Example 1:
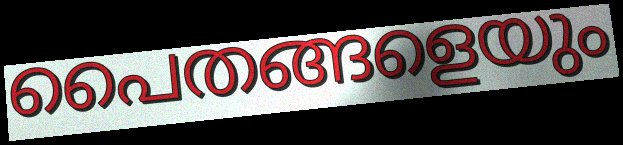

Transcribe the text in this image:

പൈതങ്ങളെയും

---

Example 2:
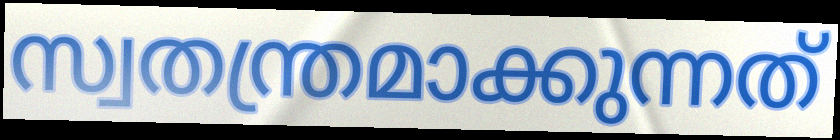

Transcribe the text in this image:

സ്വതന്ത്രമാക്കുന്നത്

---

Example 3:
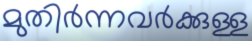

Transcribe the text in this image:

മുതിർന്നവർക്കുള്ള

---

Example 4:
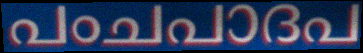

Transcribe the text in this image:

പംചപാദപ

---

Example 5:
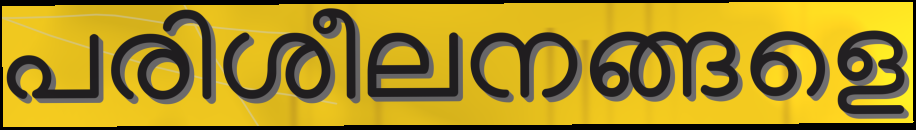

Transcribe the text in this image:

പരിശീലനങ്ങളെ